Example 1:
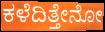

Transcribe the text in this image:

ಕಳೆದಿತ್ತೇನೋ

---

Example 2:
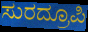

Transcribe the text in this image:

ಸುರದ್ರೂಪಿ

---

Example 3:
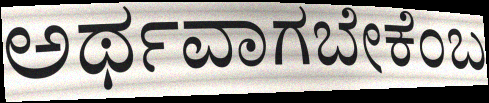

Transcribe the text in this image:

ಅರ್ಥವಾಗಬೇಕೆಂಬ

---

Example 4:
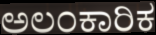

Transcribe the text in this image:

ಅಲಂಕಾರಿಕ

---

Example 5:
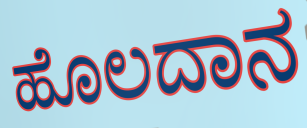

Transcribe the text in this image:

ಹೊಲದಾನ